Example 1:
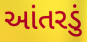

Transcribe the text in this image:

આંતરડું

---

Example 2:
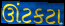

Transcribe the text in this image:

ઊંટકટા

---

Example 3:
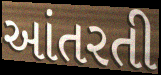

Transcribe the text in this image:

આંતરતી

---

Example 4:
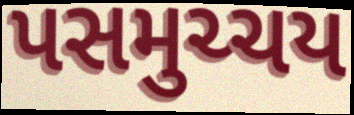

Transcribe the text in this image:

પસમુચ્ચય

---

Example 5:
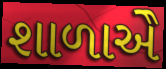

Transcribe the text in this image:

શાળાએે